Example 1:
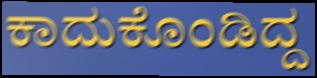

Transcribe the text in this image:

ಕಾದುಕೊಂಡಿದ್ದ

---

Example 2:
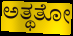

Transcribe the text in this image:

ಅತ್ಥತೋ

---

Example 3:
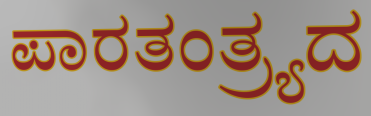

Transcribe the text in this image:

ಪಾರತಂತ್ರ್ಯದ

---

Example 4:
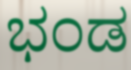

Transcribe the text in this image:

ಭಂಡ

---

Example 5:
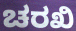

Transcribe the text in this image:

ಚರಖಿ